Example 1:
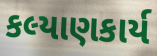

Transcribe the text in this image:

કલ્યાણકાર્ય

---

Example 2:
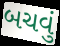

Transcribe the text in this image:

બચવું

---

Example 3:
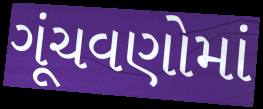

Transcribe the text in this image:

ગૂંચવણોમાં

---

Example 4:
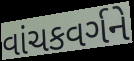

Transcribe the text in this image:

વાંચકવર્ગને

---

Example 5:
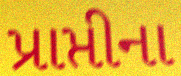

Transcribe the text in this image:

પ્રાપ્તીના